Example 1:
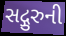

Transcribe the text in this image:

સદ્ગુરુની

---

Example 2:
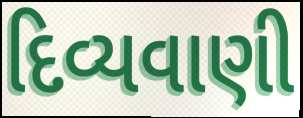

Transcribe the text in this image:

દિવ્યવાણી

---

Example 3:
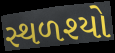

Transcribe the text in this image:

સ્થળશ્યો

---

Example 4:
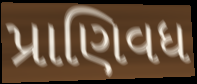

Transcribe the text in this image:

પ્રાણિવધ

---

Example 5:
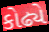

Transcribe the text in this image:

કોઢ્યે